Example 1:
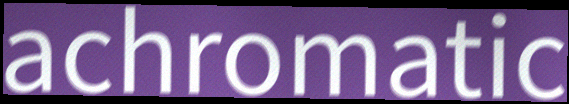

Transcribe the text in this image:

achromatic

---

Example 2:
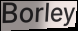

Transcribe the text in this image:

Borley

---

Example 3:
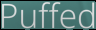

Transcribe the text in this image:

Puffed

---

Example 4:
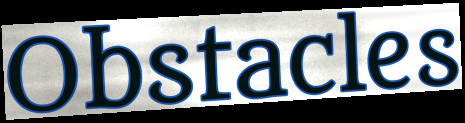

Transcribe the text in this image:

Obstacles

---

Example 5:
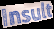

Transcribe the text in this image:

Insult